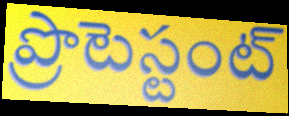
ప్రొటెస్టంట్